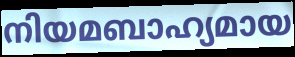
നിയമബാഹ്യമായ